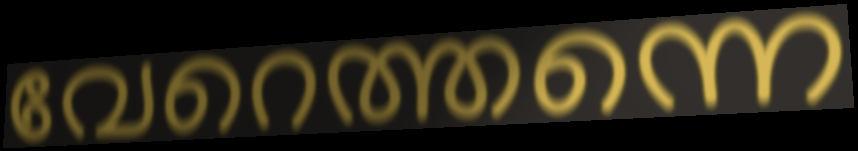
വേറെത്തന്നെ